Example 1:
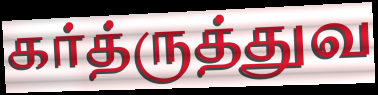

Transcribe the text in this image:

கர்த்ருத்துவ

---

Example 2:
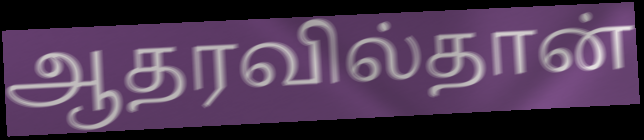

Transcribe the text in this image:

ஆதரவில்தான்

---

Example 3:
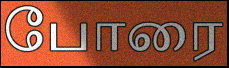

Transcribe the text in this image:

போரை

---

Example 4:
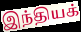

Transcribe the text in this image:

இந்தியக்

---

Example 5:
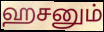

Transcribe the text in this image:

ஹசனும்